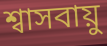
শ্বাসবায়ু